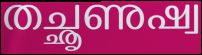
തച്ഛൃണുഷ്വ